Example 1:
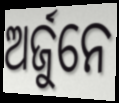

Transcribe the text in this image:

ଅର୍ଜୁନେ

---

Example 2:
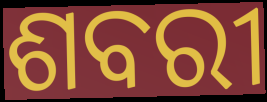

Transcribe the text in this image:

ଶବରୀ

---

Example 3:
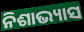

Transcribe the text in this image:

ନିଶାଭ୍ୟାସ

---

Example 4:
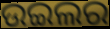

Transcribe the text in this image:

ଉଇଲର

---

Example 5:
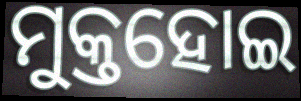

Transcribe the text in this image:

ମୁକ୍ତହୋଇ